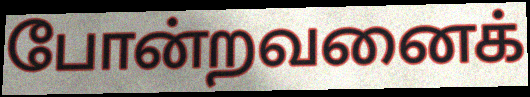
போன்றவனைக்